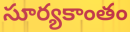
సూర్యకాంతం